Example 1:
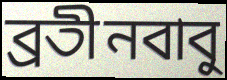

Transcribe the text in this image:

ব্রতীনবাবু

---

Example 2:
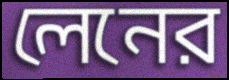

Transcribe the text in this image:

লেনের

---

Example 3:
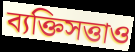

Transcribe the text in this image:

ব্যক্তিসত্তাও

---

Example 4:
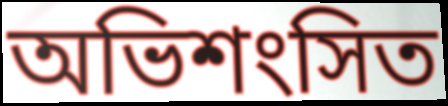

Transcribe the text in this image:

অভিশংসিত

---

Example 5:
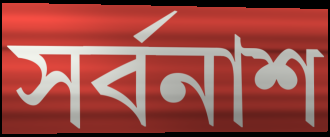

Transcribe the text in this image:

সর্বনাশ